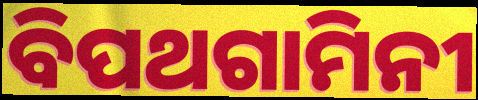
ବିପଥଗାମିନୀ